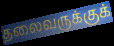
தலைவருக்குக்